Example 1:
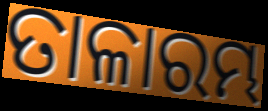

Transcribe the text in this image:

ତାଳାରମ୍ଭ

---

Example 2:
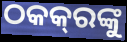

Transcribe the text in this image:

ଠକକ୍‌ରଙ୍କୁ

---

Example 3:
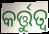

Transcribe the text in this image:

କର୍ତ୍ତୁତ୍ୱ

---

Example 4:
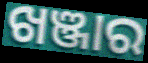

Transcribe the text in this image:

ଖଞ୍ଜାର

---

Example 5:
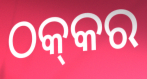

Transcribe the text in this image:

ଠକ୍‍କର